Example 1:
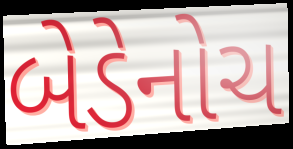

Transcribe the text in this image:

બેડેનોચ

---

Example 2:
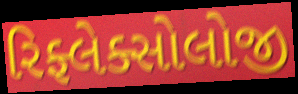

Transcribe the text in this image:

રિફ્લેક્સોલોજી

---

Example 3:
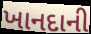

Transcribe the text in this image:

ખાનદાની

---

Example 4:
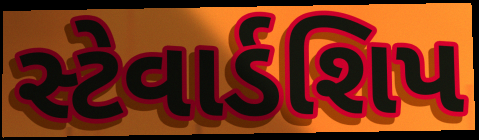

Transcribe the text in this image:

સ્ટેવાર્ડશિપ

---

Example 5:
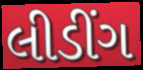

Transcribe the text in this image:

લીડીંગ